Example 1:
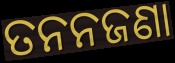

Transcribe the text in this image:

ତନନଜଣା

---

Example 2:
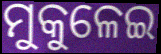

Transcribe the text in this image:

ମୁକୁଳେଇ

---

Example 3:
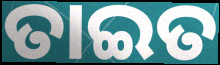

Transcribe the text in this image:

ତାଇତ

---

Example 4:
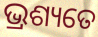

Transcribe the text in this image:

ଭ୍ରଶ୍ୟତେ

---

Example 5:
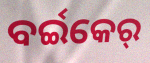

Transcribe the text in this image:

ବର୍ଇକେର୍